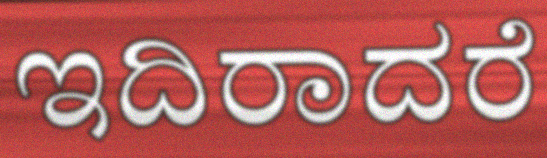
ಇದಿರಾದರೆ